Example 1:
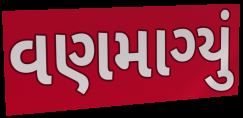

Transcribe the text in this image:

વણમાગ્યું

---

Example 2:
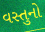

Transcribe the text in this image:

વસ્તુનો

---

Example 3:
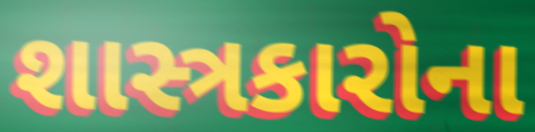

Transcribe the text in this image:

શાસ્ત્રકારોના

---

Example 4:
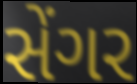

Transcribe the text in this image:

સેંગર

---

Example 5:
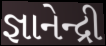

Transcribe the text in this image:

જ્ઞાનેન્દ્રી